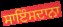
ਸਾਇੰਸਦਾਨਾ